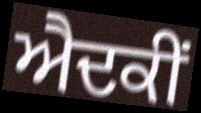
ਐਦਕੀਂ